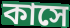
কাসে